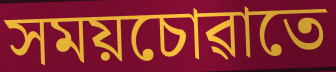
সময়চোৱাতে